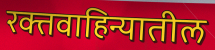
रक्तवाहिन्यातील